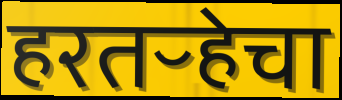
हरतऱ्हेचा